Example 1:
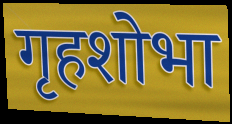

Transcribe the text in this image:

गृहशोभा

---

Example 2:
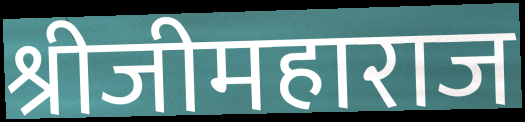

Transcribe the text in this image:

श्रीजीमहाराज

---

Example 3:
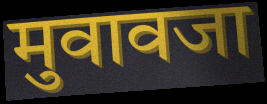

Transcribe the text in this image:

मुवावजा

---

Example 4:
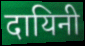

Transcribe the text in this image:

दायिनी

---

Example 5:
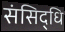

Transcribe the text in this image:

संसिद्धि